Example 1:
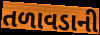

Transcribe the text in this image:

તળાવડાની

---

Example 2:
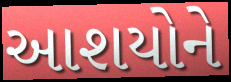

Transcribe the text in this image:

આશયોને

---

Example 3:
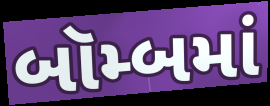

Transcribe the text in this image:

બૉમ્બમાં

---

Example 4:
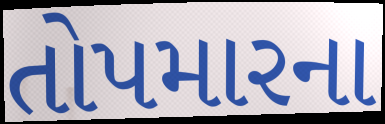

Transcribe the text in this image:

તોપમારના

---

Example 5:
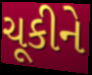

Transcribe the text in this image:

ચૂકીને